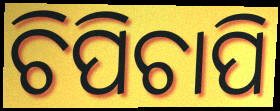
ଚିପିଚାପି